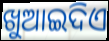
ଖୁଆଇଦିଏ